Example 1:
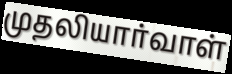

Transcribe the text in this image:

முதலியார்வாள்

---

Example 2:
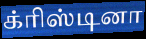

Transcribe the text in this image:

க்ரிஸ்டினா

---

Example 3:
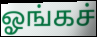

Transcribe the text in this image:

ஓங்கச்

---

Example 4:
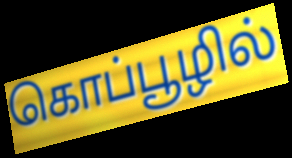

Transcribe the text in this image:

கொப்பூழில்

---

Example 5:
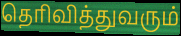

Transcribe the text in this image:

தெரிவித்துவரும்